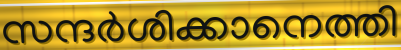
സന്ദർശിക്കാനെത്തി